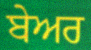
ਬੇਅਰ